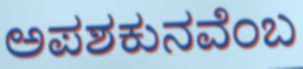
ಅಪಶಕುನವೆಂಬ